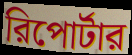
রিপোর্টার